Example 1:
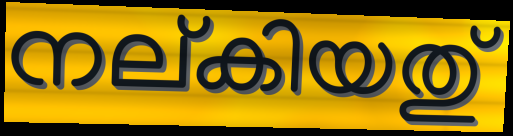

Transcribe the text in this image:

നല്കിയതു്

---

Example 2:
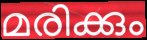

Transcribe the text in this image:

മരിക്കും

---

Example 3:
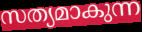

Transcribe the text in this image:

സത്യമാകുന്ന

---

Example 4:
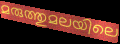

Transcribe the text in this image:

മരുത്തുമലയിലെ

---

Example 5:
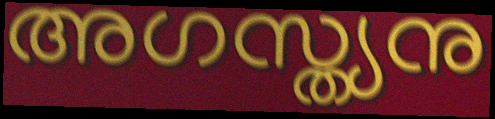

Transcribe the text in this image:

അഗസ്ത്യനു